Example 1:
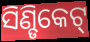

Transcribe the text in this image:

ସିଣ୍ଡିକେଟ୍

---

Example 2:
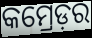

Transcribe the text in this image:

କମ୍ରେଡ଼ର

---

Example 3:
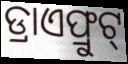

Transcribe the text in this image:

ଡ୍ରାଏଫ୍ରୁଟ୍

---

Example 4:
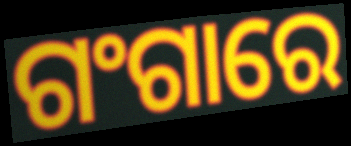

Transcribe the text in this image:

ଗଂଗାରେ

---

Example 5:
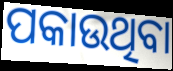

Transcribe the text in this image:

ପକାଉଥିବା